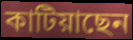
কাটিয়াছেন